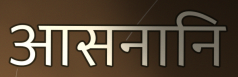
आसनानि